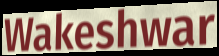
Wakeshwar